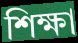
শিক্ষা